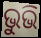
ଭୁଭି